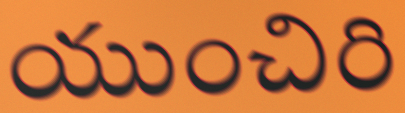
యుంచిరి